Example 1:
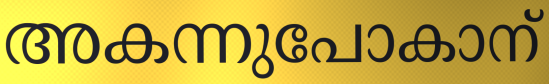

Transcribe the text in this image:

അകന്നുപോകാന്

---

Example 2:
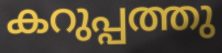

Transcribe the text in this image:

കറുപ്പത്തു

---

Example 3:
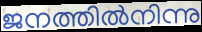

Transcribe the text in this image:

ജനത്തിൽനിന്നു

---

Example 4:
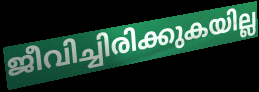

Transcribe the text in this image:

ജീവിച്ചിരിക്കുകയില്ല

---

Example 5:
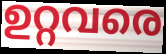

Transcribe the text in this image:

ഉറ്റവരെ